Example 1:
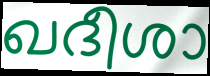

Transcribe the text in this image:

ഖദീശാ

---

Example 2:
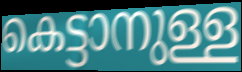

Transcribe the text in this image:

കെട്ടാനുള്ള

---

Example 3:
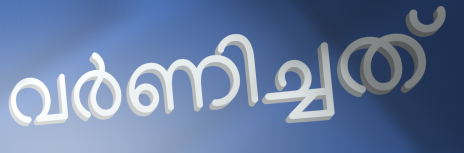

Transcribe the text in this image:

വർണിച്ചത്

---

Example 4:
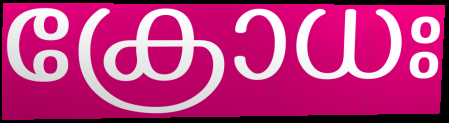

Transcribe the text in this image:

ക്രോധഃ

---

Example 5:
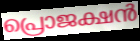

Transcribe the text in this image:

പ്രൊജക്ഷൻ